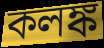
কলঙ্ক